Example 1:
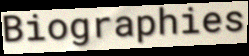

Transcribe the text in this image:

Biographies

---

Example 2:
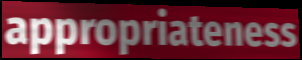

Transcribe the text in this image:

appropriateness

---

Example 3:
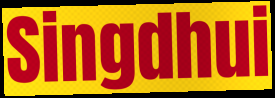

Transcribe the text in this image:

Singdhui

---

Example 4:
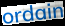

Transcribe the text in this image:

ordain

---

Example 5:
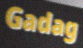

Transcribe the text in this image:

Gadag